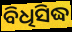
ବିଧିସିଦ୍ଧ